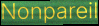
Nonpareil